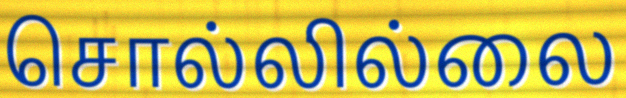
சொல்லில்லை